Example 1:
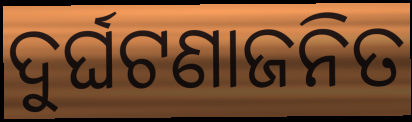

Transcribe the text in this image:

ଦୁର୍ଘଟଣାଜନିତ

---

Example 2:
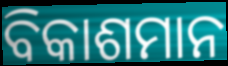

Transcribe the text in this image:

ବିକାଶମାନ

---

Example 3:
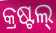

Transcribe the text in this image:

କ୍ରଷ୍ଟଲ୍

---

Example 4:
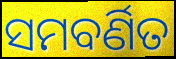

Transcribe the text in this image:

ସମବର୍ଣିତ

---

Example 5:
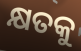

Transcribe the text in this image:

କ୍ଷତକୁ